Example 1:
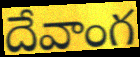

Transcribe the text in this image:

దేవాంగ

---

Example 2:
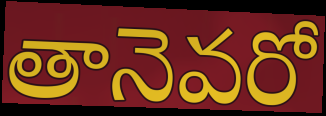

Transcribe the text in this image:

తానెవరో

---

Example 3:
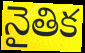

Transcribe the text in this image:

నైతిక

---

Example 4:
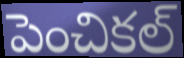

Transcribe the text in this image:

పెంచికల్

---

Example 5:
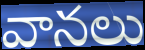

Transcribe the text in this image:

వానలు